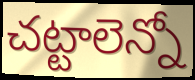
చట్టాలెన్నో